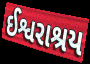
ઈશ્વરાશ્રય